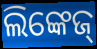
ଲିଙ୍କେଜ୍